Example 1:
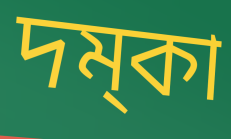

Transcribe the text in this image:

দম্‌কা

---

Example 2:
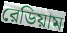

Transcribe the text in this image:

রেডিয়াম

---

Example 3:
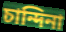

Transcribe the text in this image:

চান্দিনা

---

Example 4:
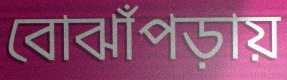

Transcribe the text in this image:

বোঝাঁপড়ায়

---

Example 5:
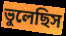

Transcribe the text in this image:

ভুলেছিস